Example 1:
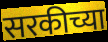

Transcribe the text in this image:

सरकीच्या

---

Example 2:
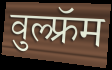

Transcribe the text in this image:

वुल्फ्रॅम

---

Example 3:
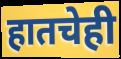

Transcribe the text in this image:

हातचेही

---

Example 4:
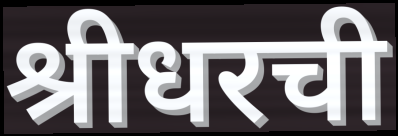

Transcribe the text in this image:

श्रीधरची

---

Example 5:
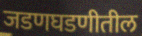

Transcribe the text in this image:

जडणघडणीतील